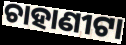
ଚାହାଣୀଟା